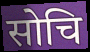
सोचि